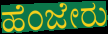
ಹೆಂಜೇರು